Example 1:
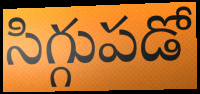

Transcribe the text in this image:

సిగ్గుపడో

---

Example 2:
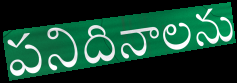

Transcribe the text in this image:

పనిదినాలను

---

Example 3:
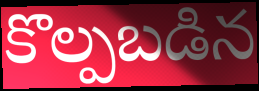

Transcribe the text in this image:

కొల్పబడిన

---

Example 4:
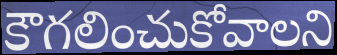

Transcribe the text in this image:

కౌగలించుకోవాలని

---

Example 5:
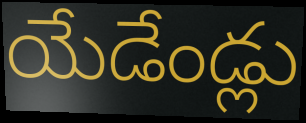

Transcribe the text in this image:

యేడేండ్లు